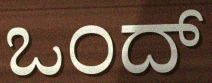
ಒಂದ್